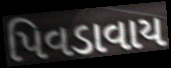
પિવડાવાય